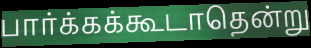
பார்க்கக்கூடாதென்று